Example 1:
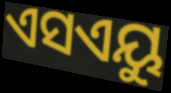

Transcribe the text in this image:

ଏସଏୟୁ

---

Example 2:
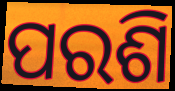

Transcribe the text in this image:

ପରଶି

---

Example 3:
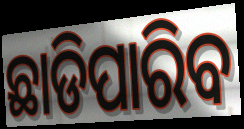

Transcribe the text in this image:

ଛାଡିପାରିବ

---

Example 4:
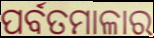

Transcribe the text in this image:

ପର୍ବତମାଳାର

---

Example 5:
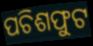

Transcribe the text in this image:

ପଚିଶଫୁଟ